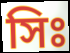
সিঃ